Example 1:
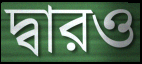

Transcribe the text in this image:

দ্বারও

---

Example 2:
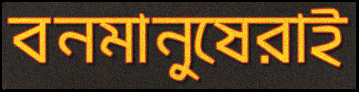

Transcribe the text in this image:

বনমানুষেরাই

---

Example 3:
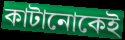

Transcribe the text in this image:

কাটানোকেই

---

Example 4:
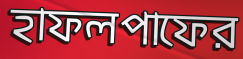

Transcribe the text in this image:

হাফলপাফের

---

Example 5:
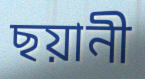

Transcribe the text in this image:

ছয়ানী